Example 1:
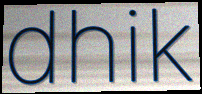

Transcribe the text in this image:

dhik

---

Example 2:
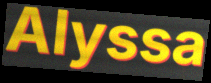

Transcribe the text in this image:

Alyssa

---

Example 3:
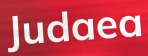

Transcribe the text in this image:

Judaea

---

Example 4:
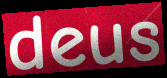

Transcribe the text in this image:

deus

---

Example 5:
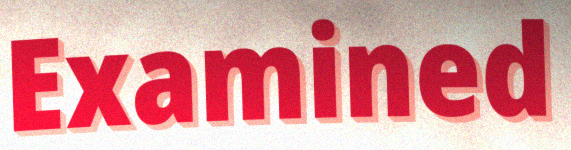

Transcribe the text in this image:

Examined